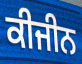
ਕੀਜੀਨ